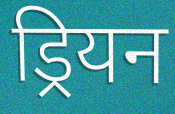
ड्रियन